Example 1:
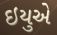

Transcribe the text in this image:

ઇયુએ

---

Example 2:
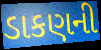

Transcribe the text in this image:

ડાકણની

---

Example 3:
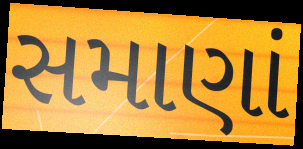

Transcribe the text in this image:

સમાણાં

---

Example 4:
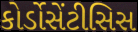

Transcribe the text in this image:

કોર્ડોસેંટીસિસ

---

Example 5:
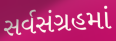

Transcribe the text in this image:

સર્વસંગ્રહમાં